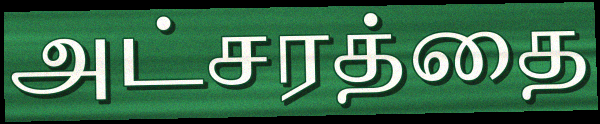
அட்சரத்தை